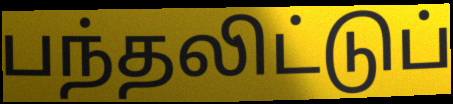
பந்தலிட்டுப்